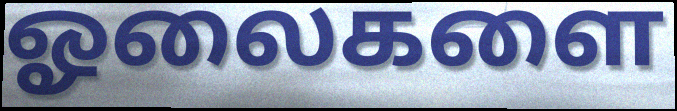
ஓலைகளை